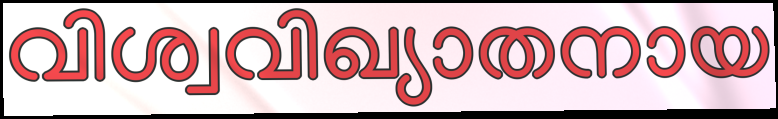
വിശ്വവിഖ്യാതനായ